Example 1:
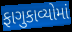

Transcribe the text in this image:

ફાગુકાવ્યોમાં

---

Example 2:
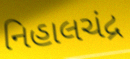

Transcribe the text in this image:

નિહાલચંદ્ર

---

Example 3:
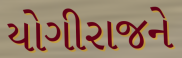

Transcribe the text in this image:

યોગીરાજને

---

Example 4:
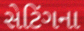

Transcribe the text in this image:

સેટિંગના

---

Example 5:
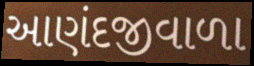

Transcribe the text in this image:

આણંદજીવાળા